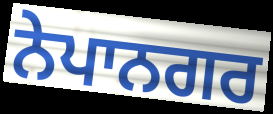
ਨੇਪਾਨਗਰ